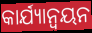
କାର୍ଯ୍ୟାନ୍ଵୟନ